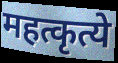
महत्कृत्ये